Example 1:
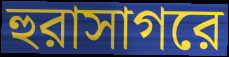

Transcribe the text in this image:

হুরাসাগরে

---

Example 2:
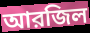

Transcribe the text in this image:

আরজিল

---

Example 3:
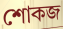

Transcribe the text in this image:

শোকজ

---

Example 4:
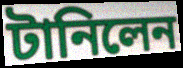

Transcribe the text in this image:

টানিলেন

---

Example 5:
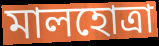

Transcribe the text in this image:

মালহোত্রা